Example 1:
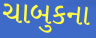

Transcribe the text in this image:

ચાબુકના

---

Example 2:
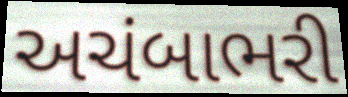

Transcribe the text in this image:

અચંબાભરી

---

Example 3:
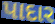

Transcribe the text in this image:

પાદાર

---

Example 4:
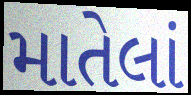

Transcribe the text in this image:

માતેલાં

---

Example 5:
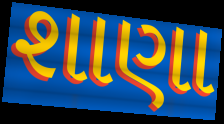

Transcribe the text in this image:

શાણા